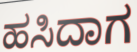
ಹಸಿದಾಗ